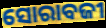
ସୋରାବଜୀ